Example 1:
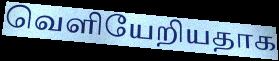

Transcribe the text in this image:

வெளியேறியதாக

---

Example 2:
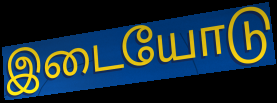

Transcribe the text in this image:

இடையோடு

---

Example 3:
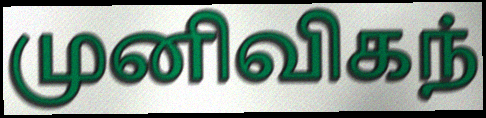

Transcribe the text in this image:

முனிவிகந்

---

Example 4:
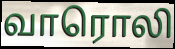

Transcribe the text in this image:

வாரொலி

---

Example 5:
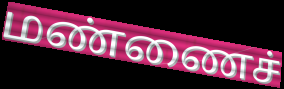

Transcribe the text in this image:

மண்ணைச்